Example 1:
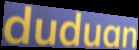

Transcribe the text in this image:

duduan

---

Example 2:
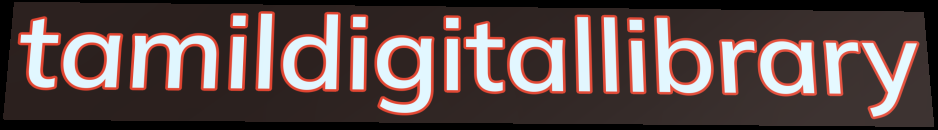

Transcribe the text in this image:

tamildigitallibrary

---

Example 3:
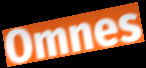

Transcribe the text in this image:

Omnes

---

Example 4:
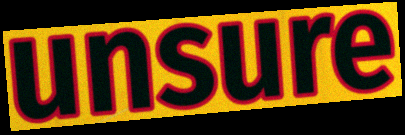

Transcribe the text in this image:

unsure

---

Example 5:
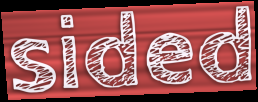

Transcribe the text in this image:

sided